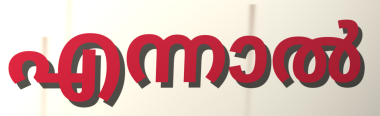
എന്നാൽ